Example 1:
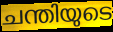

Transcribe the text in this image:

ചന്തിയുടെ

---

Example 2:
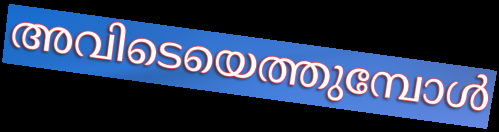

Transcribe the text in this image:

അവിടെയെത്തുമ്പോൾ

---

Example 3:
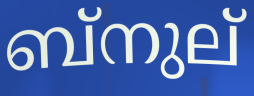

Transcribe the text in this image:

ബ്നുല്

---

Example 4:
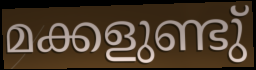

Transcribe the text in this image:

മക്കളുണ്ടു്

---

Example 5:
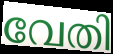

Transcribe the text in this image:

വേതി